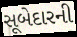
સૂબેદારની